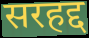
सरहद्द